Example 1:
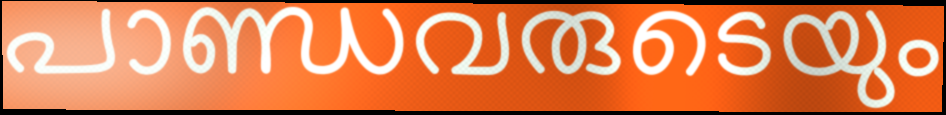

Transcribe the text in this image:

പാണ്ഡവരുടെയും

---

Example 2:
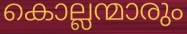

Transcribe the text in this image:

കൊല്ലന്മാരും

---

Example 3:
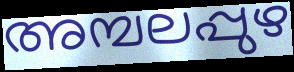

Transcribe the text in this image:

അമ്പലപ്പുഴ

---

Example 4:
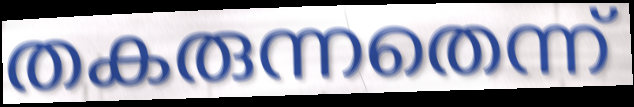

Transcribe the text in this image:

തകരുന്നതെന്ന്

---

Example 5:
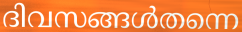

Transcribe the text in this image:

ദിവസങ്ങൾതന്നെ